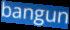
bangun